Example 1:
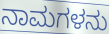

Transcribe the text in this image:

ನಾಮಗಳನು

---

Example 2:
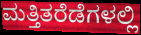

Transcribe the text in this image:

ಮತ್ತಿತರೆಡೆಗಳಲ್ಲಿ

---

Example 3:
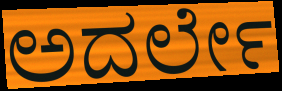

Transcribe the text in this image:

ಅದರ್ಲೇ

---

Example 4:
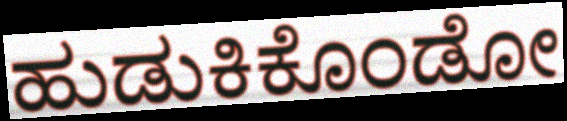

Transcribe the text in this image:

ಹುಡುಕಿಕೊಂಡೋ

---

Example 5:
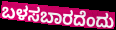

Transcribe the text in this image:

ಬಳಸಬಾರದೆಂದು